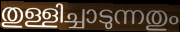
തുള്ളിച്ചാടുന്നതും